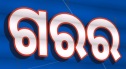
ଗରର